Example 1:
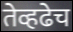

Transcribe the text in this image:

तेव्हढेच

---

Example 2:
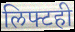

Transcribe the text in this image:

लिफ्टही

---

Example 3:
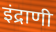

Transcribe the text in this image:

इंद्राणी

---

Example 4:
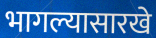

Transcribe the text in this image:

भागल्यासारखे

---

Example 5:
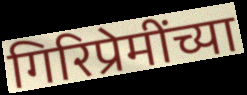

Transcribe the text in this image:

गिरिप्रेमींच्या